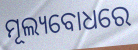
ମୂଲ୍ୟବୋଧରେ